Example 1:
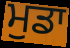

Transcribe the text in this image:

ਮੁਡਾ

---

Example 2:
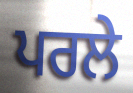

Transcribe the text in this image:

ਪਰਲੇ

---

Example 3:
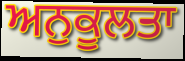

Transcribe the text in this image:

ਅਨੁਕੂਲਤਾ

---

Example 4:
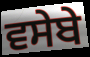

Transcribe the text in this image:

ਵਸੇਬੇ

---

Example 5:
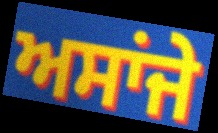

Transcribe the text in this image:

ਅਸਾਂਜੇ